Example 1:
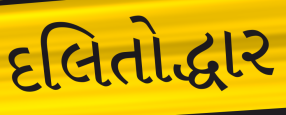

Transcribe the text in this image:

દલિતોદ્ધાર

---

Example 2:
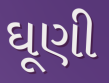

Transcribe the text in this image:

ઘૂણી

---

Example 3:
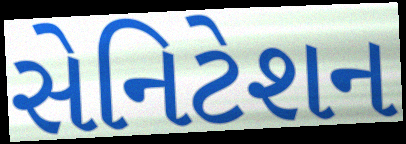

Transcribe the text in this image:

સેનિટેશન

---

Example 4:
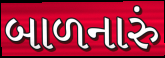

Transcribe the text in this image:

બાળનારું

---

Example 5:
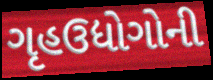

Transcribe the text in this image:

ગૃહઉદ્યોગોની